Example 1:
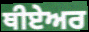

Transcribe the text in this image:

ਥੀਏਅਰ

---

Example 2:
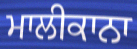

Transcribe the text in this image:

ਮਾਲੀਕਾਨਾ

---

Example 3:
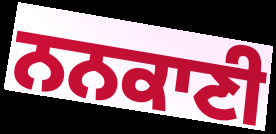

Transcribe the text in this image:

ਨਨਕਾਣੀ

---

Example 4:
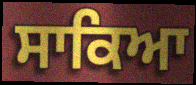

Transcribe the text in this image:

ਸਾਕਿਆ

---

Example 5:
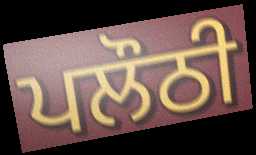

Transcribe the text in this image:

ਪਲੌਠੀ